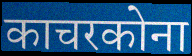
काचरकोना